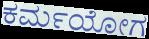
ಕರ್ಮಯೋಗ